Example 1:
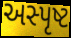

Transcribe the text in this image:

અસ્પૃષ્ટ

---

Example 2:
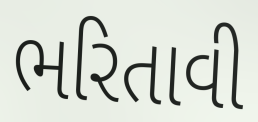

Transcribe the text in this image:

ભરિતાવી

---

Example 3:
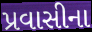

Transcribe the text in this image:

પ્રવાસીના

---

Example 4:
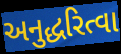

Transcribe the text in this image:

અનુદ્ધરિત્વા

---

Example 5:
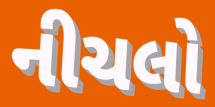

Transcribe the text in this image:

નીચલો